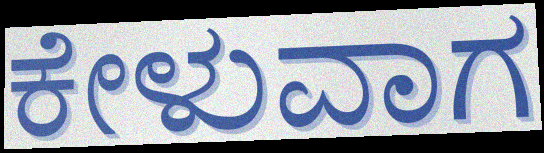
ಕೇಳುವಾಗ